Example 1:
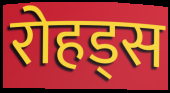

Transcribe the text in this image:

रोहड्स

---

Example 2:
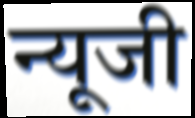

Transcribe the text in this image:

न्यूजी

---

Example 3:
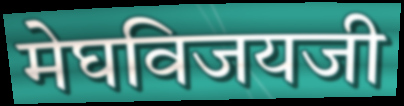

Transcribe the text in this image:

मेघविजयजी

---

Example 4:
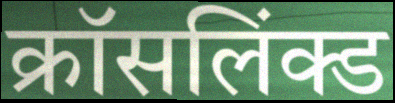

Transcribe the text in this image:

क्रॉसलिंक्ड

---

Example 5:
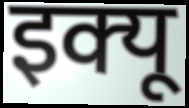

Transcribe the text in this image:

इक्यू